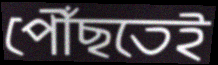
পৌঁছতেই